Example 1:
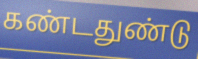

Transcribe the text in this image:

கண்டதுண்டு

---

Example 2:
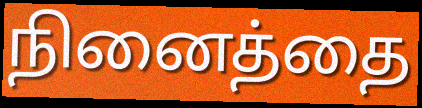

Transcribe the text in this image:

நினைத்தை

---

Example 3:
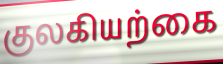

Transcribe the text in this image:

குலகியற்கை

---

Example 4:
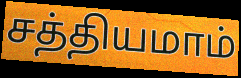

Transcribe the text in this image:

சத்தியமாம்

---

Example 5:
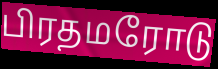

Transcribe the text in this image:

பிரதமரோடு